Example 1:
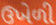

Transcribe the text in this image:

ઉખેળી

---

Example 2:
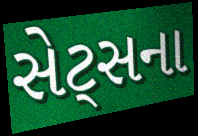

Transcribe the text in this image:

સેટ્સના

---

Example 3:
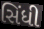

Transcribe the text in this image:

સિંધી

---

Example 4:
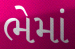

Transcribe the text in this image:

ભેમાં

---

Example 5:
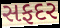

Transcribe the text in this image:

સફદર